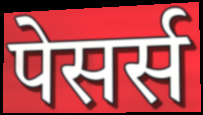
पेसर्स